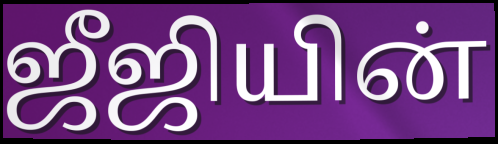
ஜீஜியின்